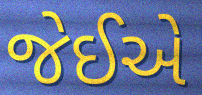
જેઈએ